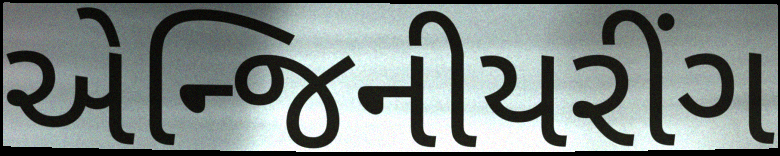
એન્જિનીયરીંગ